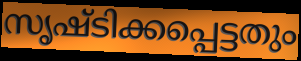
സൃഷ്ടിക്കപ്പെട്ടതും